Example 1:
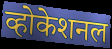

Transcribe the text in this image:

व्होकेशनल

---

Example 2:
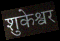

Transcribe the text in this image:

शुकेश्वर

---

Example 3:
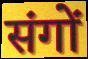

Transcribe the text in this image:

संगों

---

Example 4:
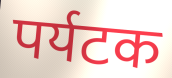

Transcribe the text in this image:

पर्यटक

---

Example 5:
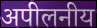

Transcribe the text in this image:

अपीलनीय